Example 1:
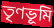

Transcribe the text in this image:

তৃণভূমি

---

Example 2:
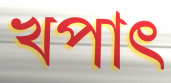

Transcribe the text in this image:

খপাৎ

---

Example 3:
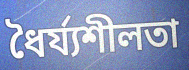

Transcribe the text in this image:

ধৈর্য্যশীলতা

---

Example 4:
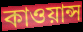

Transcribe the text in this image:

কাওয়ান্স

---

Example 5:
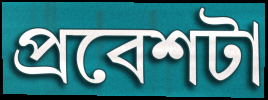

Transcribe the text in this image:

প্রবেশটা